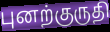
புனற்குருதி